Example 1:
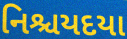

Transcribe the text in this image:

નિશ્ચયદયા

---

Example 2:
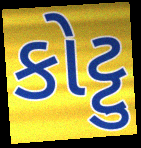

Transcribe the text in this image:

કોટ્ટુ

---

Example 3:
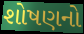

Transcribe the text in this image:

શોષણનો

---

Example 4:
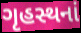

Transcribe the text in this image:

ગૃહસ્થનાં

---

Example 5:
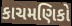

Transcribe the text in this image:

કાચમણિકો